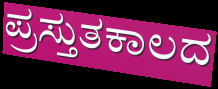
ಪ್ರಸ್ತುತಕಾಲದ